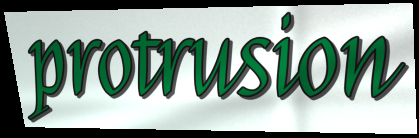
protrusion